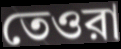
তেওরা